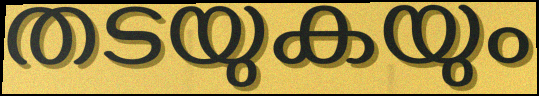
തടയുകയും